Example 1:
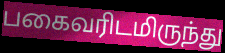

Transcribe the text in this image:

பகைவரிடமிருந்து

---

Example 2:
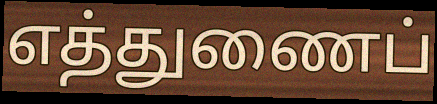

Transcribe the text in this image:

எத்துணைப்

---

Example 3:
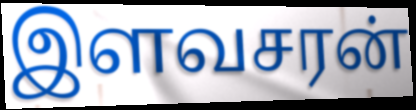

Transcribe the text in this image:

இளவசரன்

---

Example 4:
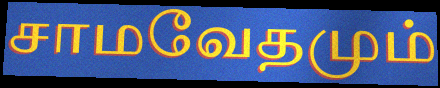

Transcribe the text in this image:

சாமவேதமும்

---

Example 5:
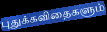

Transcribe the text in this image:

புதுக்கவிதைகளும்